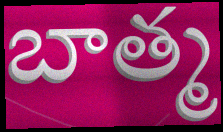
బాత్మ